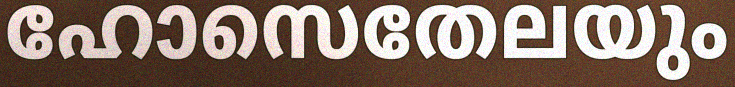
ഹോസെതേലയും